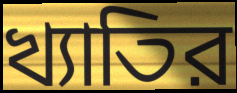
খ্যাতির